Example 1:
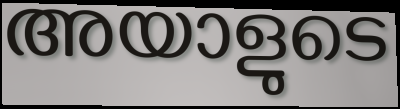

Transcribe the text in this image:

അയാളുടെ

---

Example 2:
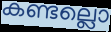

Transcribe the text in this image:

കണ്ടല്ലൊ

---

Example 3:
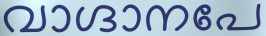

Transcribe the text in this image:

വാഗ്ദാനപേ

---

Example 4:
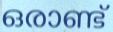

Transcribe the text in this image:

ഒരാണ്ട്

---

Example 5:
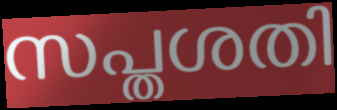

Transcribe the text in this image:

സപ്തശതി